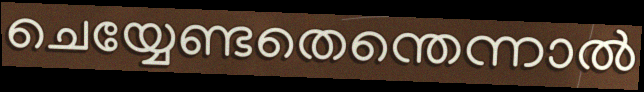
ചെയ്യേണ്ടതെന്തെന്നാൽ